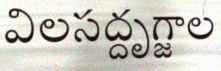
విలసద్దృగ్జాల